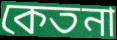
কেতনা